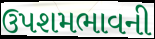
ઉપશમભાવની